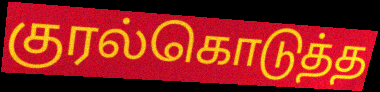
குரல்கொடுத்த